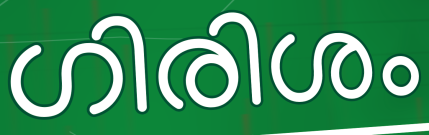
ഗിരിശം